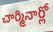
చార్మినార్లో